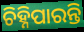
ଚିହ୍ନିପାରନ୍ତି